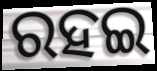
ରହଇ